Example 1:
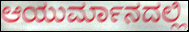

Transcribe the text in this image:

ಆಯುರ್ಮಾನದಲ್ಲಿ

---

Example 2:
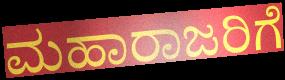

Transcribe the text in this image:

ಮಹಾರಾಜರಿಗೆ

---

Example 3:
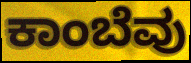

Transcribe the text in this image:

ಕಾಂಬೆವು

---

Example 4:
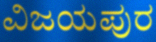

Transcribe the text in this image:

ವಿಜಯಪುರ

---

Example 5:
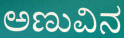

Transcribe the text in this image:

ಅಣುವಿನ